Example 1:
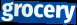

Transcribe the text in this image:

grocery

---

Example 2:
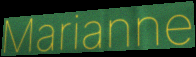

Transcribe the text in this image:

Marianne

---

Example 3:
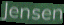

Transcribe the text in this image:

Jensen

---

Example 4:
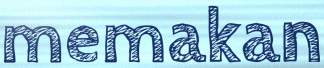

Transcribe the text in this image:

memakan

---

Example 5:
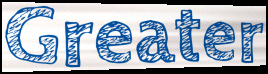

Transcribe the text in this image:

Greater